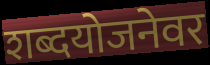
शब्दयोजनेवर